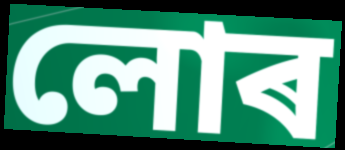
লোৰ